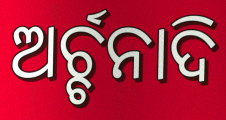
ଅର୍ଚ୍ଚନାଦି